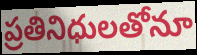
ప్రతినిధులతోనూ